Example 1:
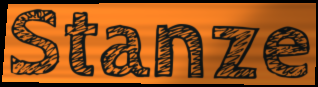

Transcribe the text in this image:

Stanze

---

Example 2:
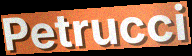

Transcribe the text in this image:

Petrucci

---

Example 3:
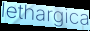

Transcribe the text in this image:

lethargica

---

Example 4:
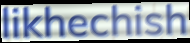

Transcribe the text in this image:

likhechish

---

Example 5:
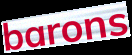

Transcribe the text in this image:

barons